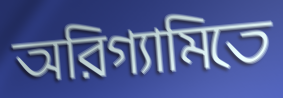
অরিগ্যামিতে